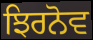
ਝਿਰਨੋਵ